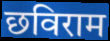
छविराम